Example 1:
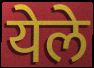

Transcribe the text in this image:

येले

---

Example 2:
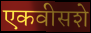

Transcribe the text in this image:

एकवीसशे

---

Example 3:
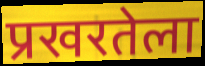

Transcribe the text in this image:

प्रखरतेला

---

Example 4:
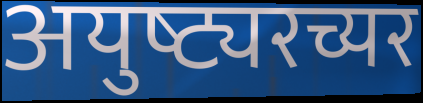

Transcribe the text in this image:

अयुष्ट्यरच्यर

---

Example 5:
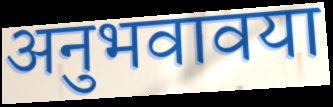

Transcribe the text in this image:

अनुभवावया